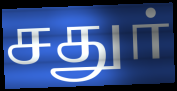
சதுர்